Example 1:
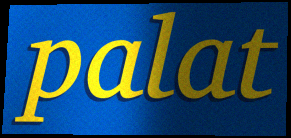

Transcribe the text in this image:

palat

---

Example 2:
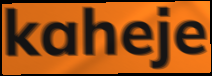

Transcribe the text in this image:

kaheje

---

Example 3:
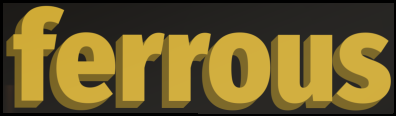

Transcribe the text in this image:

ferrous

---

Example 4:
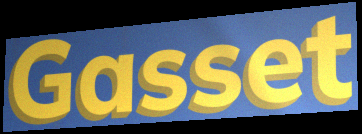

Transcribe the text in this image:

Gasset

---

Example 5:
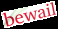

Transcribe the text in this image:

bewail